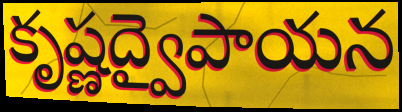
కృష్ణద్వైపాయన